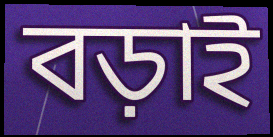
বড়াই